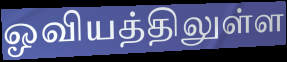
ஓவியத்திலுள்ள